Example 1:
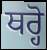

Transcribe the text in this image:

ਥਰ੍ਹੋ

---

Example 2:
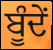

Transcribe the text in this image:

ਬੂੰਦੇਂ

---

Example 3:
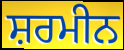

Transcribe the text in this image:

ਸ਼ਰਮੀਨ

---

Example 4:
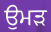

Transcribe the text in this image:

ਉਮੜ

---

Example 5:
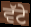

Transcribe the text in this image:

ਵੱਟੇ